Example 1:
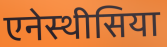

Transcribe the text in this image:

एनेस्थीसिया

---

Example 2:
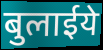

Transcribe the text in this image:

बुलाईये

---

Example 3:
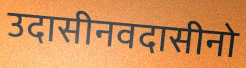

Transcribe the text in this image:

उदासीनवदासीनो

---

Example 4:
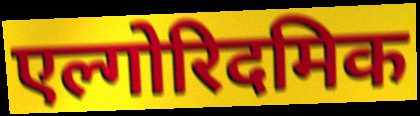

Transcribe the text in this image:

एल्गोरिदमिक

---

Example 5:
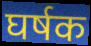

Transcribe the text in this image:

घर्षक